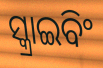
ସ୍କ୍ରାଇବିଂ